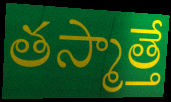
తస్మాత్తే